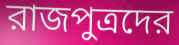
রাজপুত্রদের